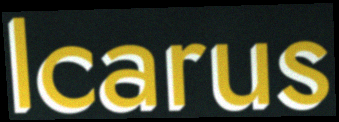
Icarus